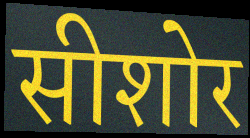
सीशोर